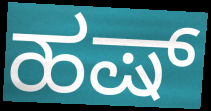
ಹಷ್